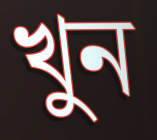
খুন